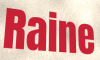
Raine